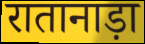
रातानाड़ा